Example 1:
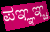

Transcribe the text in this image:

ಪಞ್ಞಞ್ಚ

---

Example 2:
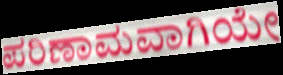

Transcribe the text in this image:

ಪರಿಣಾಮವಾಗಿಯೇ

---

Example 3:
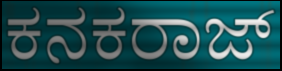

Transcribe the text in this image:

ಕನಕರಾಜ್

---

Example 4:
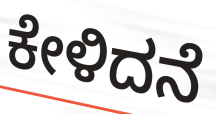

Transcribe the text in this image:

ಕೇಳಿದನೆ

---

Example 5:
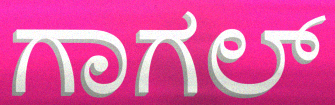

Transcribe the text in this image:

ಗಾಗಲ್